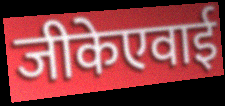
जीकेएवाई